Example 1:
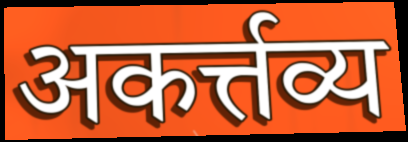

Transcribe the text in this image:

अकर्त्तव्य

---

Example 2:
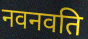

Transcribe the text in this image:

नवनवति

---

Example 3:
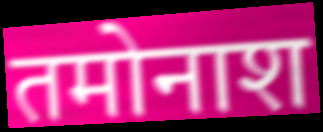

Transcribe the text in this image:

तमोनाश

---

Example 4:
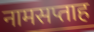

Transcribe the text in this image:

नामसप्ताह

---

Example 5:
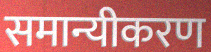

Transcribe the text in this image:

समान्यीकरण